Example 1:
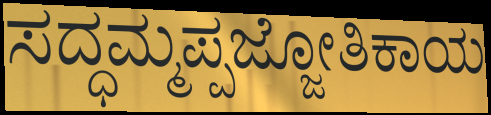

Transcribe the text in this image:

ಸದ್ಧಮ್ಮಪ್ಪಜ್ಜೋತಿಕಾಯ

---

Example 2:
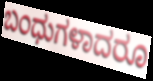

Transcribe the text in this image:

ಬಂಧುಗಳಾದರೂ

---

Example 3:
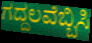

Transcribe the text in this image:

ಗದ್ದಲವೆಬ್ಬಿಸಿ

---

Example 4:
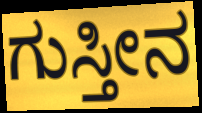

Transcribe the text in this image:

ಗುಸ್ತೀನ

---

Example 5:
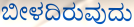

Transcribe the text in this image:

ಬೀಳದಿರುವುದು